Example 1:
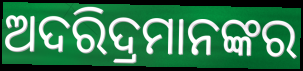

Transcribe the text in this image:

ଅଦରିଦ୍ରମାନଙ୍କର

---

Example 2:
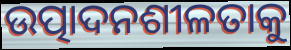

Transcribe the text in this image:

ଉତ୍ପାଦନଶୀଳତାକୁ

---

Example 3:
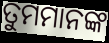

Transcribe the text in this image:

ତୁମମାନଙ୍କ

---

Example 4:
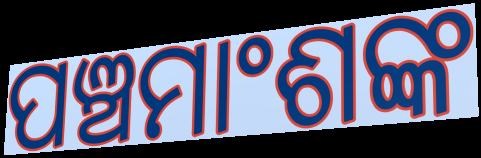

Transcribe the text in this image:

ପଞ୍ଚମାଂଶଙ୍କ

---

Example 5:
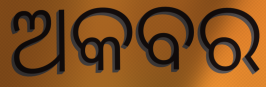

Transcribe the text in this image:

ଅକବର